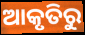
ଆକୃତିରୁ